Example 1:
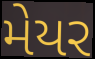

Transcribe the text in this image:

મેયર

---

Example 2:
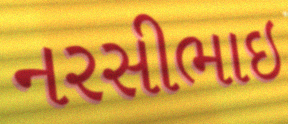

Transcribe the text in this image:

નરસીભાઇ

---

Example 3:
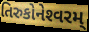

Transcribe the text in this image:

તિરુકોનેશ્‍વરમ્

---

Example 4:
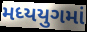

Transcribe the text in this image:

મધ્યયુગમાં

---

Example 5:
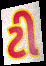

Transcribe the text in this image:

ટી